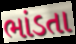
ભાંડતા